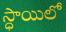
స్ధాయిలో